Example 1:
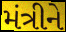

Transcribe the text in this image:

મંત્રીને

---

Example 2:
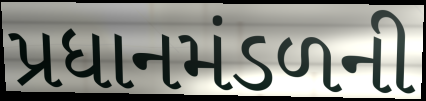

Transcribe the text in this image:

પ્રધાનમંડળની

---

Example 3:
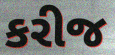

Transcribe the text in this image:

કરીજ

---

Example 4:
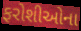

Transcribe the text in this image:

ફરોશીઓના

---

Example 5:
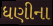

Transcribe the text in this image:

ધણીના